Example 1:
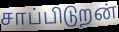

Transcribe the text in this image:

சாப்பிடுறன்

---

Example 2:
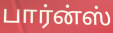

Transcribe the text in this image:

பார்ன்ஸ்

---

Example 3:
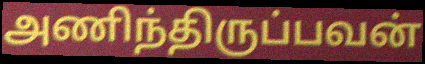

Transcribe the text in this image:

அணிந்திருப்பவன்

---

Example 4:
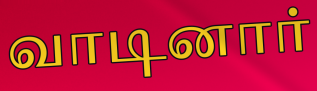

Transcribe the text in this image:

வாடினார்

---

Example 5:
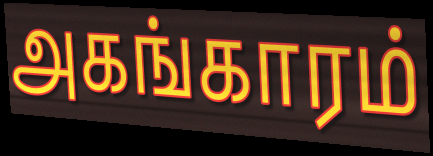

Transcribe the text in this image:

அகங்காரம்